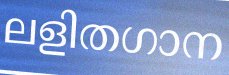
ലളിതഗാന